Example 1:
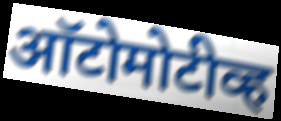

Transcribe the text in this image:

ऑटोमोटीव्ह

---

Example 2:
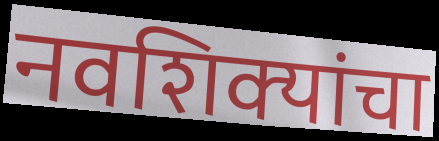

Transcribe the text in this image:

नवशिक्यांचा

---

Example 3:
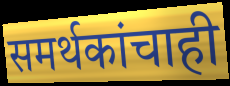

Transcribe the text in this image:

समर्थकांचाही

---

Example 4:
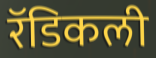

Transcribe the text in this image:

रॅडिकली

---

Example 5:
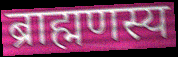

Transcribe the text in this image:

ब्राह्मणस्य